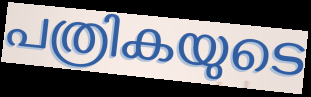
പത്രികയുടെ